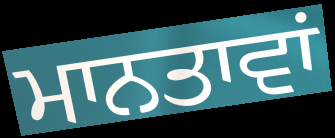
ਮਾਨਤਾਵਾਂ